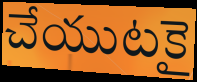
చేయుటకై